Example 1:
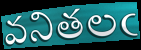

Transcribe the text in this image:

వనితలఁ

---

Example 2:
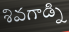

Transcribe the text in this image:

శివగాడ్ని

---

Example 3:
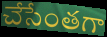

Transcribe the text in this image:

చేసేంతగా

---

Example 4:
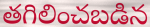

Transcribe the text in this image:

తగిలించబడిన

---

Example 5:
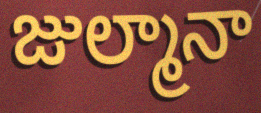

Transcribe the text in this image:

జుల్మానా